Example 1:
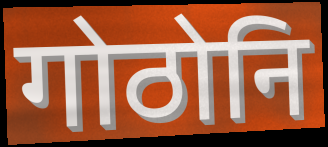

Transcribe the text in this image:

गोठोनि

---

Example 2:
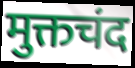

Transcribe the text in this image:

मुक्तचंद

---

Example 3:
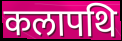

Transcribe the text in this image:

कलापथि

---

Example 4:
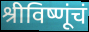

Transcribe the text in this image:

श्रीविष्णूंचं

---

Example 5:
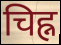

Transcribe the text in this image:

चिह्न